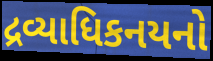
દ્રવ્યાધિકનયનો